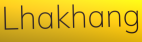
Lhakhang